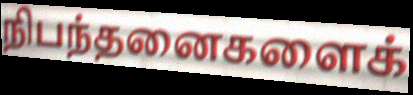
நிபந்தனைகளைக்